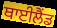
ਥਾਈਲੈਂਡ